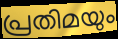
പ്രതിമയും